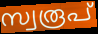
സ്വരൂപ്